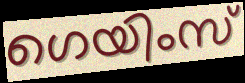
ഗെയിംസ്